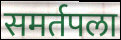
समर्तपला